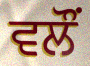
ਵਲੌੰ